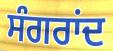
ਸੰਗਰਾਂਦ